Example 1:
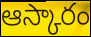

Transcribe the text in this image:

ఆస్కారం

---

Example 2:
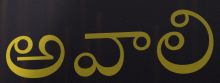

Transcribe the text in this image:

అవాలి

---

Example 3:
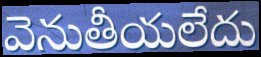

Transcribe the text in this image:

వెనుతీయలేదు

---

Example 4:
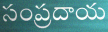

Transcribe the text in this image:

సంప్రదాయ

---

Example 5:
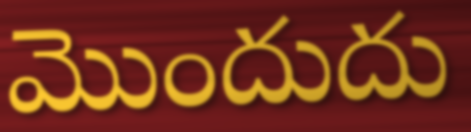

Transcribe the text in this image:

మొందుదు